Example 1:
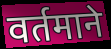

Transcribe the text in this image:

वर्तमाने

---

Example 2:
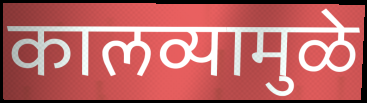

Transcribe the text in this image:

कालव्यामुळे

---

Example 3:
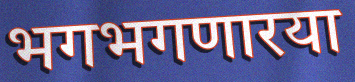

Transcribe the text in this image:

भगभगणारया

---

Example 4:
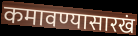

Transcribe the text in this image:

कमावण्यासारखं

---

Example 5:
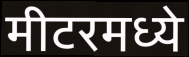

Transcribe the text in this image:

मीटरमध्ये